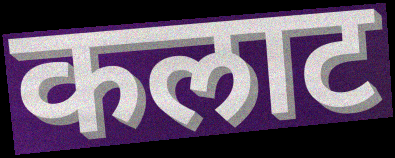
कलाट